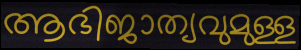
ആഭിജാത്യവുമുള്ള